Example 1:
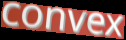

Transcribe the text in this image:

convex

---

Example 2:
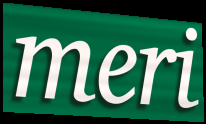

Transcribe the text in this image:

meri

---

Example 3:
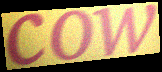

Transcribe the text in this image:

cow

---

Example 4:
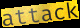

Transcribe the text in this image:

attack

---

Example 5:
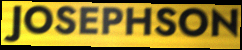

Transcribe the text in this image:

JOSEPHSON